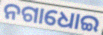
ନଗାଧୋଇ